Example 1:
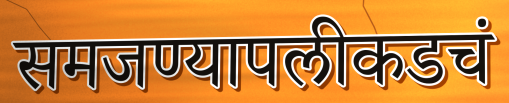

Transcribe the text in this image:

समजण्यापलीकडचं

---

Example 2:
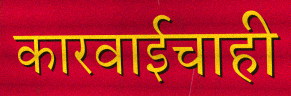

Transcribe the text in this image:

कारवाईचाही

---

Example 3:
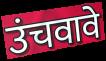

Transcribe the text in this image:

उंचवावे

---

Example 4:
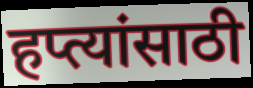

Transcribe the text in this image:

हप्त्यांसाठी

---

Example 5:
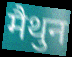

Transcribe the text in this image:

मैथुन